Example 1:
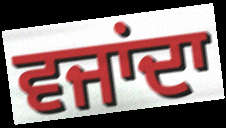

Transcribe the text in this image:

ਵਜਾਂਦਾ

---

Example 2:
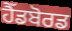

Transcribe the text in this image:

ਹੈੱਡਬੋਰਡ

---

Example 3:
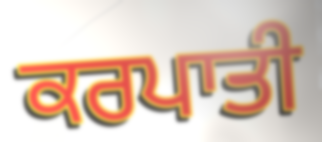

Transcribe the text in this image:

ਕਰਪਾਤੀ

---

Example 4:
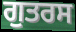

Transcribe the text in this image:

ਗੁਤਰਸ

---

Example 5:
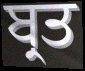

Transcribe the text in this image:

ਬ੍ਰਤ